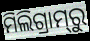
ମିଲିଗ୍ରାମ୍‌ରୁ